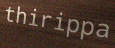
thirippa